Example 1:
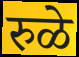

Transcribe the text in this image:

रुळे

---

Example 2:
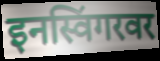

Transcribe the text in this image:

इनस्विंगरवर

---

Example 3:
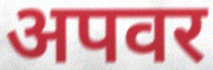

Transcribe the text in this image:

अपवर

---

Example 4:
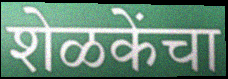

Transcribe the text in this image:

शेळकेंचा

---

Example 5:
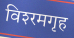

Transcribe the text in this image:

विश्रमगृह